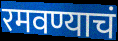
रमवण्याचं